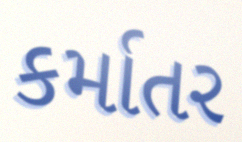
કર્માતર